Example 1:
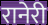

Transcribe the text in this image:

रानेरी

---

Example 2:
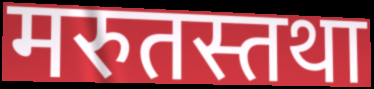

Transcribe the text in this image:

मरुतस्तथा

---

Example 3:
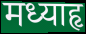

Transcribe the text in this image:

मध्याहृ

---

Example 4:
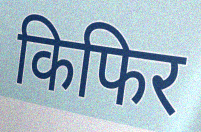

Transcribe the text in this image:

किफिर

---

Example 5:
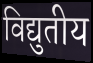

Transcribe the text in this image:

विद्युतीय